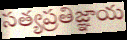
సత్యప్రతిజ్ఞాయ